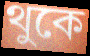
থুকে